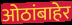
ओठांबाहेर